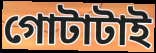
গোটাটাই